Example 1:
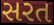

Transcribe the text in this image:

સરત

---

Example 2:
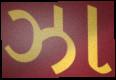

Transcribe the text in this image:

ઝા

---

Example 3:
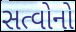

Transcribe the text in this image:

સત્વોનો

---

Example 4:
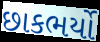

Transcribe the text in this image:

છાકભર્યો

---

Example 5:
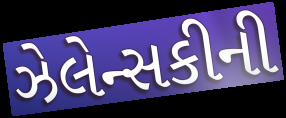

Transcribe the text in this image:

ઝેલેન્સકીની